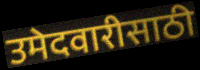
उमेदवारीसाठी